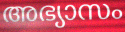
അഭ്യാസം